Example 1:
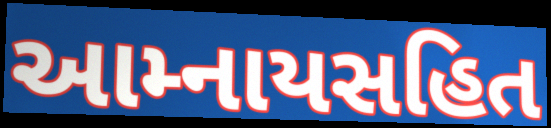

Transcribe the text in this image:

આમ્નાયસહિત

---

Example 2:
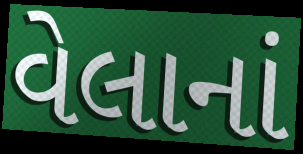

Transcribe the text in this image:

વેલાનાં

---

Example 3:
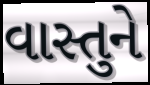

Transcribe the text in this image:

વાસ્તુને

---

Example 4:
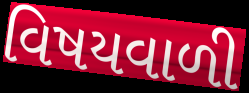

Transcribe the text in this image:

વિષયવાળી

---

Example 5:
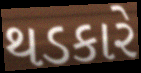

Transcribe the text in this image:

થડકારે